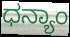
ಧನ್ಯಾಂ